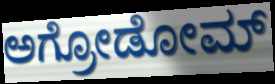
ಅಗ್ರೋಡೋಮ್